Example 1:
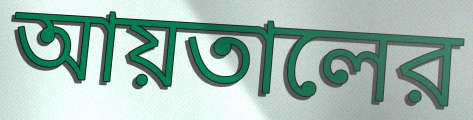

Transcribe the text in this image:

আয়তালের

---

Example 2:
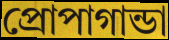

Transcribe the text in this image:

প্রোপাগান্ডা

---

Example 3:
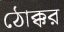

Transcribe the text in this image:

ঠোক্কর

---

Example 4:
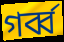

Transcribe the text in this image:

গর্ব্ব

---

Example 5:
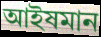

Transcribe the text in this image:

আইষমান